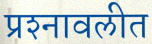
प्रश्नावलीत